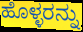
ಹೊಳ್ಳರನ್ನು